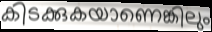
കിടക്കുകയാണെങ്കിലും